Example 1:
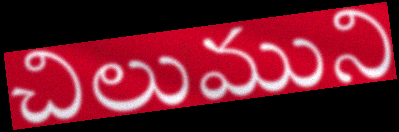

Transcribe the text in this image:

చిలుముని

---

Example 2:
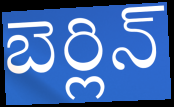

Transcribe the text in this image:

బెర్లిన్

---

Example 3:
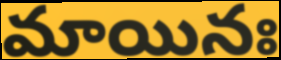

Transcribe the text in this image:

మాయినః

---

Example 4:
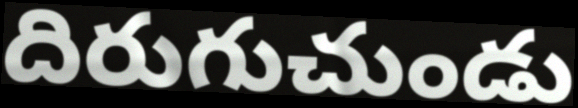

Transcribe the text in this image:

దిరుగుచుండు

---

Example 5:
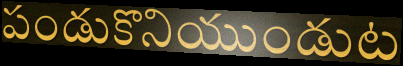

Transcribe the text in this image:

పండుకొనియుండుట